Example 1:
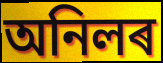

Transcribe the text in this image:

অনিলৰ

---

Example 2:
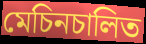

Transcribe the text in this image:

মেচিনচালিত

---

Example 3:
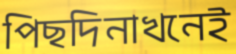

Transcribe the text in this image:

পিছদিনাখনেই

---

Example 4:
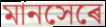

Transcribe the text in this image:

মানসেৰে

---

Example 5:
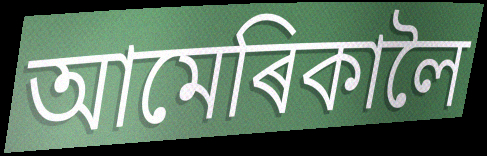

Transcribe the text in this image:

আমেৰিকালৈ